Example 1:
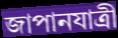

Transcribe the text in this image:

জাপানযাত্রী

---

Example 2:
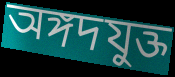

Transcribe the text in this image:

অঙ্গদযুক্ত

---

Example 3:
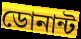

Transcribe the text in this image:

ডোনান্ট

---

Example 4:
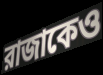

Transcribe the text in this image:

রাজাকেও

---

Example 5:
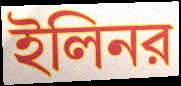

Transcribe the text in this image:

ইলিনর